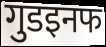
गुडइनफ